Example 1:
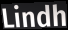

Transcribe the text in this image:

Lindh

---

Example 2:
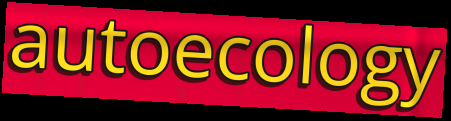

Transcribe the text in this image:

autoecology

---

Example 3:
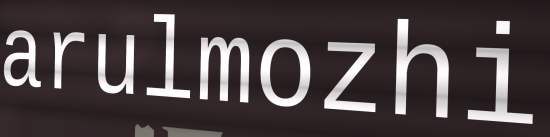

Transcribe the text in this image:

arulmozhi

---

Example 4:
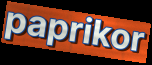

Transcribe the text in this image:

paprikor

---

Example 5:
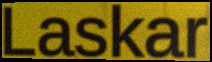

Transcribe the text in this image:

Laskar